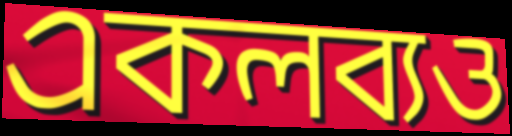
একলব্যও